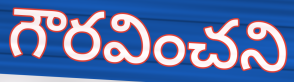
గౌరవించని